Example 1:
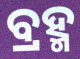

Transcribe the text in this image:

ବ୍ରହ୍ମ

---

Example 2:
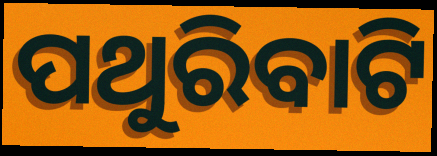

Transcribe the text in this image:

ପଥୁରିବାଟି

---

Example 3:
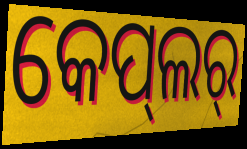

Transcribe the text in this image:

କେପ୍‌ଲର୍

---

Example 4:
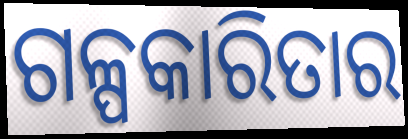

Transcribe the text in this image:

ଗଳ୍ପକାରିତାର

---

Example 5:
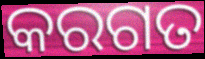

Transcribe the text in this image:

କରଗତ